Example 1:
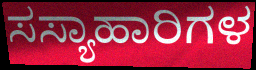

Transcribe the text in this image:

ಸಸ್ಯಾಹಾರಿಗಳ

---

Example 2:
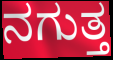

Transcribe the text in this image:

ನಗುತ್ತ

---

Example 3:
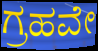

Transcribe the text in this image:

ಗ್ರಹವೇ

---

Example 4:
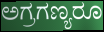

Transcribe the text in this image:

ಅಗ್ರಗಣ್ಯರೂ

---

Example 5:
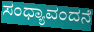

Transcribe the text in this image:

ಸಂಧ್ಯಾವಂದನೆ